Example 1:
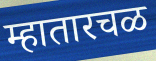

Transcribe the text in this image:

म्हातारचळ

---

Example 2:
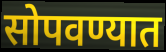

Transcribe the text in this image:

सोपवण्यात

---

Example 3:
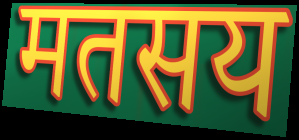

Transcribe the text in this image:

मतसय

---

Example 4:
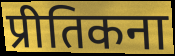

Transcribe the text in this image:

प्रीतिकना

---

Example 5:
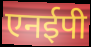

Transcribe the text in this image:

एनईपी